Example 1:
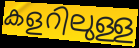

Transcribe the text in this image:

കളറിലുള്ള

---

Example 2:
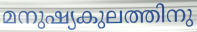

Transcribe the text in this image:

മനുഷ്യകുലത്തിനു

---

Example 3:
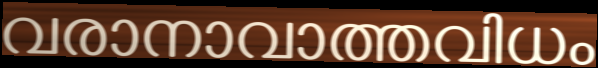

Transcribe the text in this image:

വരാനാവാത്തവിധം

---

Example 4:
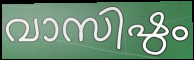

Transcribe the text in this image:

വാസിഷ്ഠം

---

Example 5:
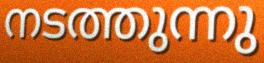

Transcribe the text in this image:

നടത്തുന്നു